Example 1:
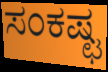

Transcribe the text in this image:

ಸಂಕಷ್ಟ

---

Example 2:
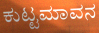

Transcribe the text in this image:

ಕುಟ್ಟಮಾವನ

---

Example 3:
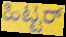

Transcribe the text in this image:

ಹಿಟ್ಟರ್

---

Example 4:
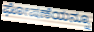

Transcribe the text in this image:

ಘೋಷಣೆಯನ್ನೂ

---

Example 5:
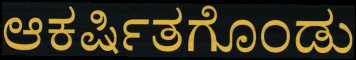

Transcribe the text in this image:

ಆಕರ್ಷಿತಗೊಂಡು